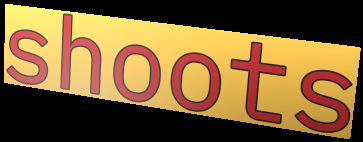
shoots